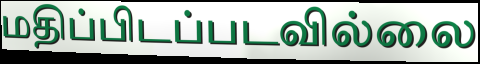
மதிப்பிடப்படவில்லை